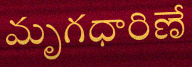
మృగధారిణే